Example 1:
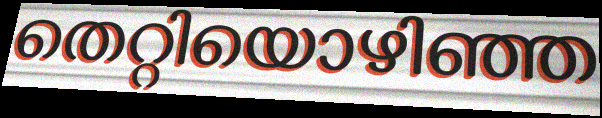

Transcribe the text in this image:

തെറ്റിയൊഴിഞ്ഞ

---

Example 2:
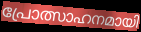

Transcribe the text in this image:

പ്രോത്സാഹനമായി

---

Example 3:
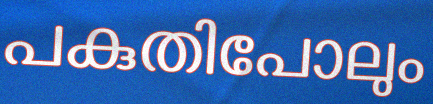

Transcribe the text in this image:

പകുതിപോലും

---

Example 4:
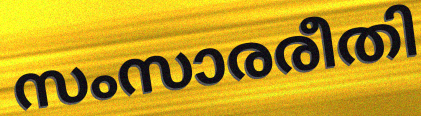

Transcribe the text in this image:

സംസാരരീതി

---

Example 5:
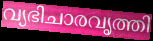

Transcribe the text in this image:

വ്യഭിചാരവൃത്തി